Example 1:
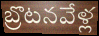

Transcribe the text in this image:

బ్రొటనవేళ్ల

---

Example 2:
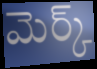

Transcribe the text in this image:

మెర్క్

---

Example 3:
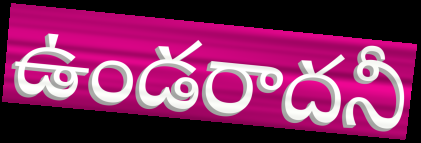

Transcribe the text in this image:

ఉండరాదనీ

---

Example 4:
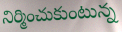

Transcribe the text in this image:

నిర్మించుకుంటున్న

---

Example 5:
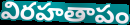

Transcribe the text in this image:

విరహతాపం